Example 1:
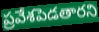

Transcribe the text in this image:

ప్రవేశపెడతారని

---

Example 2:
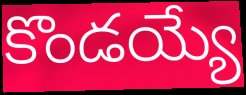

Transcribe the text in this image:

కొండయ్యే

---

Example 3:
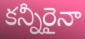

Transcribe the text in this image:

కన్నీరైనా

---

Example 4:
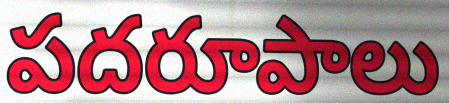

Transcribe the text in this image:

పదరూపాలు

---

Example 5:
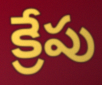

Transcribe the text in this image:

క్రేపు